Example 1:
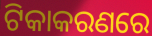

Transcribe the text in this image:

ଟିକାକରଣରେ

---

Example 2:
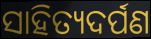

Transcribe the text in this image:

ସାହିତ୍ୟଦର୍ପଣ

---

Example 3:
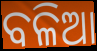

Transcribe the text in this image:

ବଳିଆ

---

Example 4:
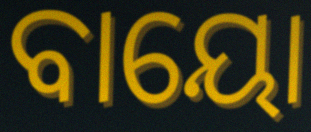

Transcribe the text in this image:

ବାୟୋ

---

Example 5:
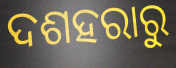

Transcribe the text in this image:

ଦଶହରାରୁ